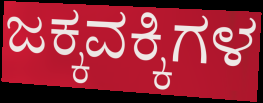
ಜಕ್ಕವಕ್ಕಿಗಳ